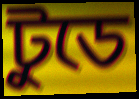
টুডে